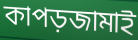
কাপড়জামাই